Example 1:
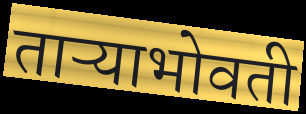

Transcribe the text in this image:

ताऱ्याभोवती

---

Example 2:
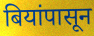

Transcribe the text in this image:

बियांपासून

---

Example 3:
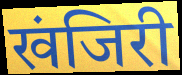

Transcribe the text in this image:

खंजिरी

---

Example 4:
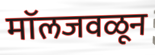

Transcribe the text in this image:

मॉलजवळून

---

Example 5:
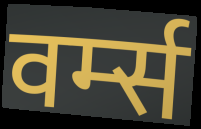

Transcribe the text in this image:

वर्म्स